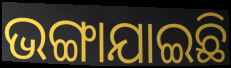
ଭଙ୍ଗାଯାଇଛି